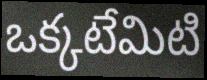
ఒక్కటేమిటి